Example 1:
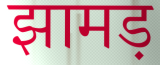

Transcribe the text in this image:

झामड़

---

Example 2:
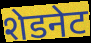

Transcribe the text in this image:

शेडनेट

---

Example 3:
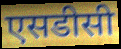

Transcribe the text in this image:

एसडीसी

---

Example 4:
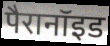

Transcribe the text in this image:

पैरानॉइड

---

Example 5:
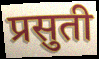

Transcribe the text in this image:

प्रसुती